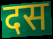
दस